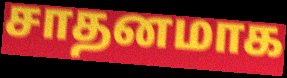
சாதனமாக